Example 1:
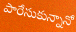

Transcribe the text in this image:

పారేసుకున్నానో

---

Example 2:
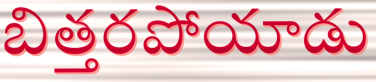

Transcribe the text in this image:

బిత్తరపోయాడు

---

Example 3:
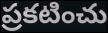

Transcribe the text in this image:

ప్రకటించు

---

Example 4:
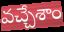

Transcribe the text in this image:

వచ్చేశాం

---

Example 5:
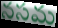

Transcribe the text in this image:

నసమ